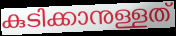
കുടിക്കാനുള്ളത്